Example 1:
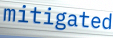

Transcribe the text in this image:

mitigated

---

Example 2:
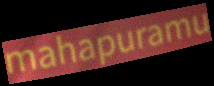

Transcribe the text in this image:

mahapuramu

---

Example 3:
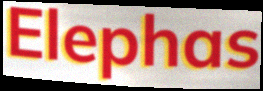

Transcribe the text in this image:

Elephas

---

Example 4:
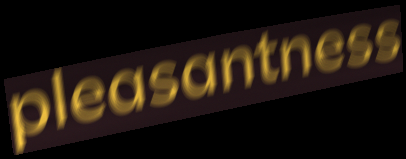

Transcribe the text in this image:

pleasantness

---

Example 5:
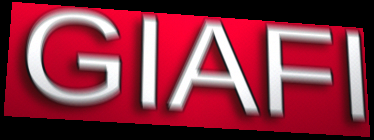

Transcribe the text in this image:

GIAFI